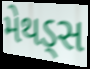
મેથડ્સ